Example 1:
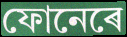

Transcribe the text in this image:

ফোনেৰে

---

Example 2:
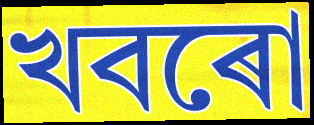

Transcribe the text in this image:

খবৰো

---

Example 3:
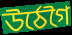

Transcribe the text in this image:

উঠেগৈ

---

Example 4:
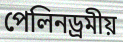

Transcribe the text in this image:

পেলিনড্ৰমীয়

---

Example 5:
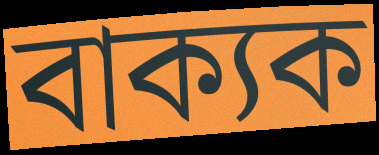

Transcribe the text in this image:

বাক্যক